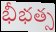
భీభత్స